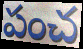
పంచ